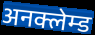
अनक्लेम्ड